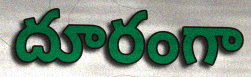
దూరంగా